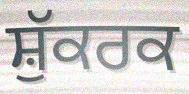
ਸ਼ੁੱਕਰਕ